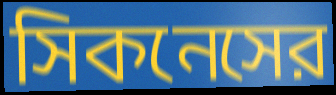
সিকনেসের